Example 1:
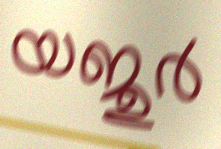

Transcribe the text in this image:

യജുർ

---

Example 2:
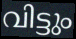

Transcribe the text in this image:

വിട്ടും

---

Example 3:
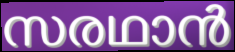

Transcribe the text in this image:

സരഥാൻ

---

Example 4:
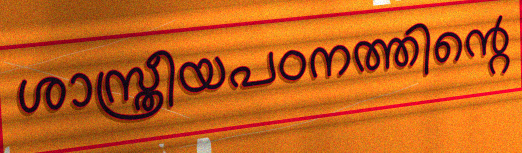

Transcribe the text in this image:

ശാസ്ത്രീയപഠനത്തിന്റെ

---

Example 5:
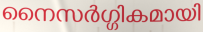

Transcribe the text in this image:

നൈസർഗ്ഗികമായി